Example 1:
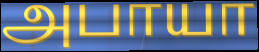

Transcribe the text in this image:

அபாயா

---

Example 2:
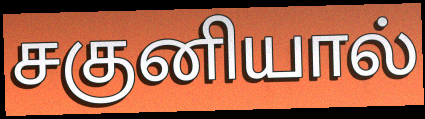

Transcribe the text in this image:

சகுனியால்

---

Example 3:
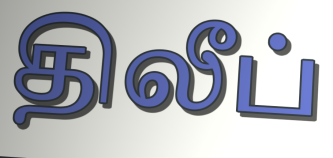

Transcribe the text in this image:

திலீப்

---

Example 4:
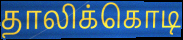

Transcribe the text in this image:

தாலிக்கொடி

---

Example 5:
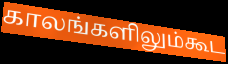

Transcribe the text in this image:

காலங்களிலும்கூட